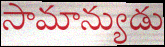
సామాన్యుడు